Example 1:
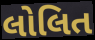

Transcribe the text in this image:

લોલિત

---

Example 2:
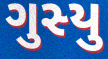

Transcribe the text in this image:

ગુસ્યુ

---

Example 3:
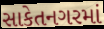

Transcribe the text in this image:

સાકેતનગરમાં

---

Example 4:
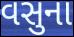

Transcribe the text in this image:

વસુના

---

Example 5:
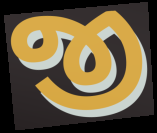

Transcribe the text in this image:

જી